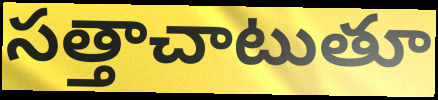
సత్తాచాటుతూ